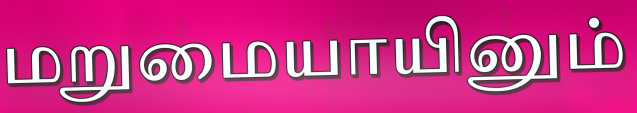
மறுமையாயினும்